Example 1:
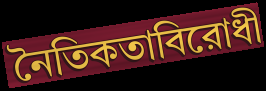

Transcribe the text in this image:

নৈতিকতাবিরোধী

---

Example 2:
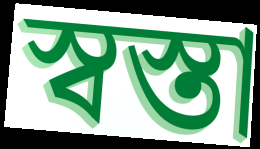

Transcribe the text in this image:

স্বস্তা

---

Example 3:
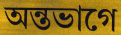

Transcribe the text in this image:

অন্তভাগে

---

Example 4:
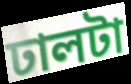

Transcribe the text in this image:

ঢালটা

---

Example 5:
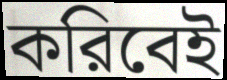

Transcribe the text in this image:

করিবেই